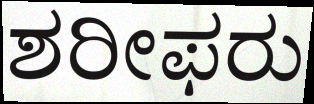
ಶರೀಫರು